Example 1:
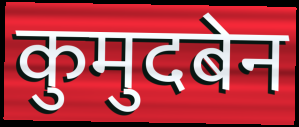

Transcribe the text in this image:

कुमुदबेन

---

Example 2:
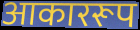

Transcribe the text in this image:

आकाररूप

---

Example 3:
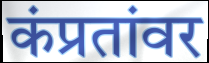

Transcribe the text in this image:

कंप्रतांवर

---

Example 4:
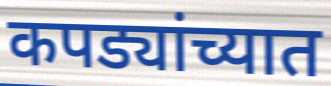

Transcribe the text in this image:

कपड्यांच्यात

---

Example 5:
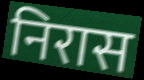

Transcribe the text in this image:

निरास